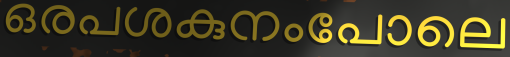
ഒരപശകുനംപോലെ